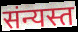
संन्यस्त